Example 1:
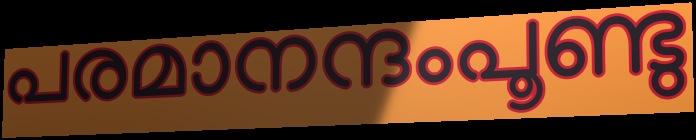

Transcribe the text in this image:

പരമാനന്ദംപൂണ്ടു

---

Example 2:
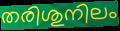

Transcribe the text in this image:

തരിശുനിലം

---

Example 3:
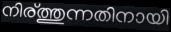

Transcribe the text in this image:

നിര്ത്തുന്നതിനായി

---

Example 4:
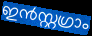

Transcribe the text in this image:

ഇൻസ്റ്റഗ്രാം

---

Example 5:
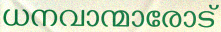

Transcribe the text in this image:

ധനവാന്മാരോട്